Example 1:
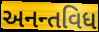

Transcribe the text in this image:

અનન્તવિધ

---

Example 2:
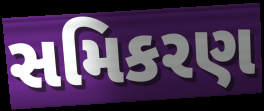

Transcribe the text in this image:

સમિકરણ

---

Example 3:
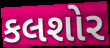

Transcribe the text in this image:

કલશોર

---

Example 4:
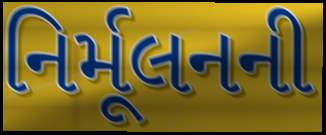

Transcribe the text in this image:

નિર્મૂલનની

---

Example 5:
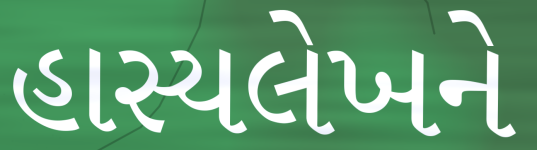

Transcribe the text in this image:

હાસ્યલેખને